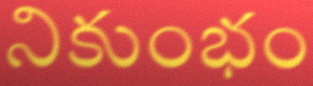
నికుంభం